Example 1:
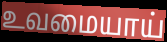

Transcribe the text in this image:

உவமையாய்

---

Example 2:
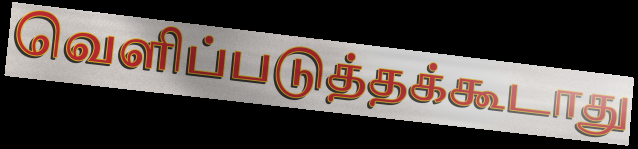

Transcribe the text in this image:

வெளிப்படுத்தக்கூடாது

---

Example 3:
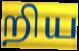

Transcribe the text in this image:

றிய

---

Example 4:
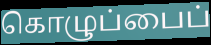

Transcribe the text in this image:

கொழுப்பைப்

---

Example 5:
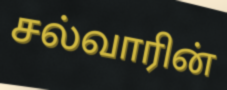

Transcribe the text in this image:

சல்வாரின்